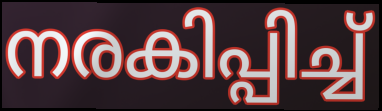
നരകിപ്പിച്ച്